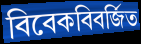
বিবেকবিবর্জিত